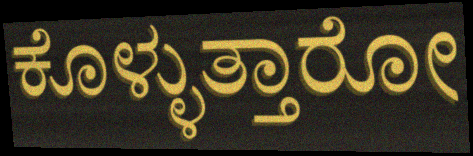
ಕೊಳ್ಳುತ್ತಾರೋ